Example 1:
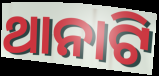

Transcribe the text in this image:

ଥାନାଟି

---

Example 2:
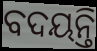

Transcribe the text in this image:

ବଦୟନ୍ତି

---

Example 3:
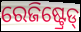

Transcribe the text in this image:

ରେଜିଷ୍ଟ୍ରେଡ୍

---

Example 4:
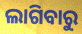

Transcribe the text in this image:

ଲାଗିବାରୁ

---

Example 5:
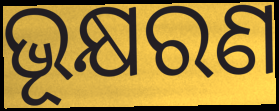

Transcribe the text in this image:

ଭୂକ୍ଷରଣ